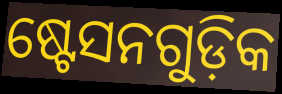
ଷ୍ଟେସନଗୁଡ଼ିକ